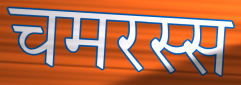
चमरस्स